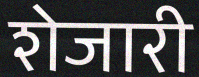
शेजारी